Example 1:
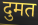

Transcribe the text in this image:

दुमत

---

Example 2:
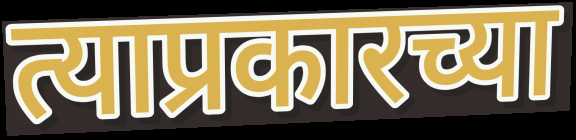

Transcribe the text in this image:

त्याप्रकारच्या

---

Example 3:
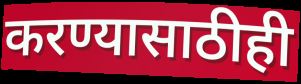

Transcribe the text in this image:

करण्यासाठीही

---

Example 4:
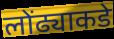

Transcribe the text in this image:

लोंढ्याकडे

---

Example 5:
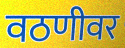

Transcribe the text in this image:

वठणीवर